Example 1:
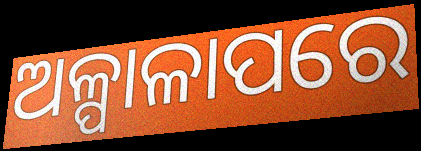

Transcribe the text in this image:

ଅଳ୍ପାଳାପରେ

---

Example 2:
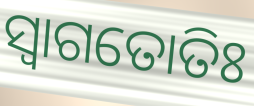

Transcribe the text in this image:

ସ୍ଵାଗତୋତିଃ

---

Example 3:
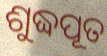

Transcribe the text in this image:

ଶୁଦ୍ଧପୂତ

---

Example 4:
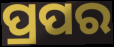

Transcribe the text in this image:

ପ୍ରପର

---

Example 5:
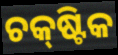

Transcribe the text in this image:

ଚକ୍‌ଷ୍ଟିକ